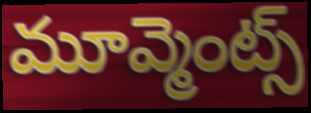
మూవ్మెంట్స్